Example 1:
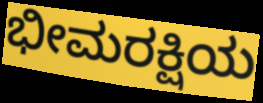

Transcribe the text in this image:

ಭೀಮರಕ್ಷಿಯ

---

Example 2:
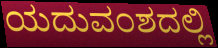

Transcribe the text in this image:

ಯದುವಂಶದಲ್ಲಿ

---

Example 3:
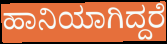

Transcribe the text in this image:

ಹಾನಿಯಾಗಿದ್ದರೆ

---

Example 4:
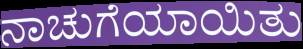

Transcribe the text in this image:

ನಾಚುಗೆಯಾಯಿತು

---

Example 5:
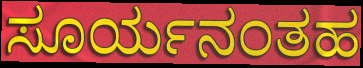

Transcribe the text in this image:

ಸೂರ್ಯನಂತಹ